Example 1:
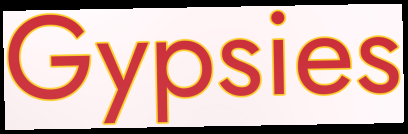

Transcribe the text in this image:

Gypsies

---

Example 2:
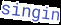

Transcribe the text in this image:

singin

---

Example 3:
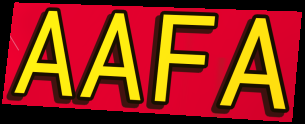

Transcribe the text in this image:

AAFA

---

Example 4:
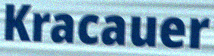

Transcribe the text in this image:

Kracauer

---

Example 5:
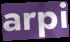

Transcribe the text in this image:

arpi